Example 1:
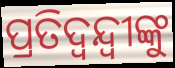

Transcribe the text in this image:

ପ୍ରତିଦ୍ବନ୍ଦ୍ବୀଙ୍କୁ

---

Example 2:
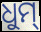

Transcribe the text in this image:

ଧୁମ୍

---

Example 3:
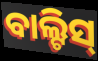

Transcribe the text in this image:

ବାଲ୍ଟିସ୍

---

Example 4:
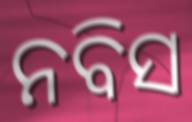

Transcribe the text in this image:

ନବିସ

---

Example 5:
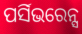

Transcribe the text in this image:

ପର୍ସିଭରେନ୍ସ